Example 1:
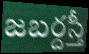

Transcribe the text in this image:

జబర్దస్తీ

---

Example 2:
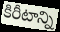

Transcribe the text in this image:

కిరీటాన్ని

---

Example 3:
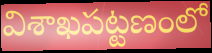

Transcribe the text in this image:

విశాఖపట్టణంలో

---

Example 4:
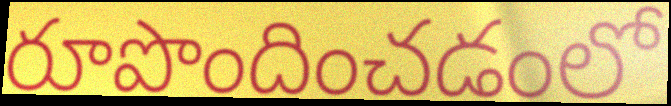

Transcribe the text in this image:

రూపొందించడంలో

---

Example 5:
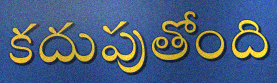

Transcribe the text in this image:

కదుపుతోంది